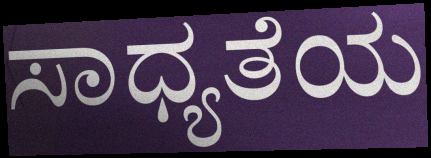
ಸಾಧ್ಯತೆಯ